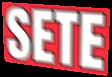
SETE